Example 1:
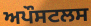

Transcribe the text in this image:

ਅਪੌਸਟਲਸ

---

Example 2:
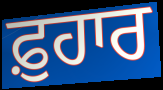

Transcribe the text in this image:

ਫ਼ੁਹਾਰ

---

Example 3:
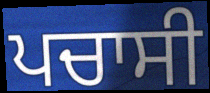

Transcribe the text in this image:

ਪਚਾਸੀ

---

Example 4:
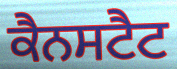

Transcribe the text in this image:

ਕੈਨਸਟੈਟ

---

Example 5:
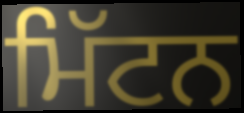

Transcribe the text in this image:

ਮਿੱਟਨ